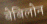
बेबिलोन